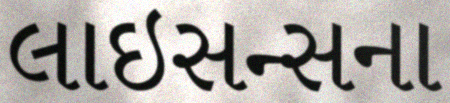
લાઇસન્સના